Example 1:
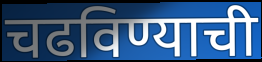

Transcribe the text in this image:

चढविण्याची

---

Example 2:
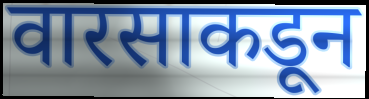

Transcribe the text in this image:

वारसाकडून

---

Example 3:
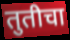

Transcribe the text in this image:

तुतीचा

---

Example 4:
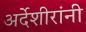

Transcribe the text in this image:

अर्देशीरांनी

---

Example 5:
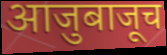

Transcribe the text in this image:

आजुबाजूच